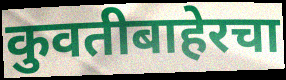
कुवतीबाहेरचा